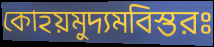
কোহয়মুদ্যমবিস্তরঃ